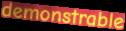
demonstrable